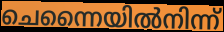
ചെന്നൈയിൽനിന്ന്